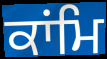
ਕਾਂਮਿ